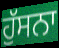
ਹੁੱਸਨਾ